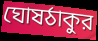
ঘোষঠাকুর